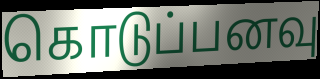
கொடுப்பனவு